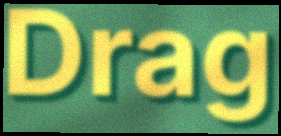
Drag